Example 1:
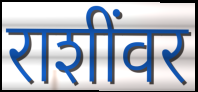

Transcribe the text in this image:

राशींवर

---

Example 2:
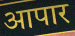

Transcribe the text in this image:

आपार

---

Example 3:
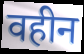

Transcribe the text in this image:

वहीन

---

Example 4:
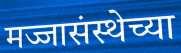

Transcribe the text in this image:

मज्जासंस्थेच्या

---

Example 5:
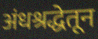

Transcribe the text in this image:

अंधश्रद्धेतून